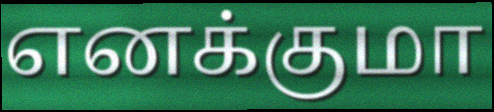
எனக்குமா